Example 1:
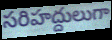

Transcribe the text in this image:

సరిహద్దులుగా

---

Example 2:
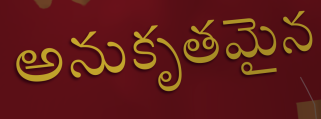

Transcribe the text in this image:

అనుకృతమైన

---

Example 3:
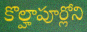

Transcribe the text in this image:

కొల్హాపూర్లోని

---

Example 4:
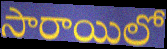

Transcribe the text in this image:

సారాయిలో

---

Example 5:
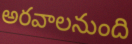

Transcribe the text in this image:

అరవాలనుంది